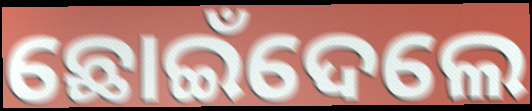
ଛୋଇଁଦେଲେ